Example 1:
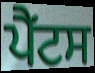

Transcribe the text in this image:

ਪੈਂਟਸ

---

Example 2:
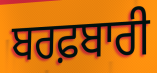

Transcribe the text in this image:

ਬਰਫ਼ਬਾਰੀ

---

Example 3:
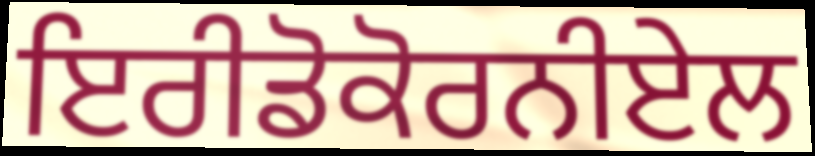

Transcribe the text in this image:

ਇਰੀਡੋਕੋਰਨੀਏਲ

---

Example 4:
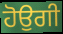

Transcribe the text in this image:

ਹੋਉਗੀ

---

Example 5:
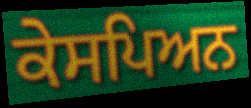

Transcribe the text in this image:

ਕੇਸਪਿਅਨ